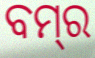
ବମ୍‌ର